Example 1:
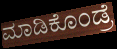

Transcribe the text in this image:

ಮಾಡಿಕೊಂಡ್ರೆ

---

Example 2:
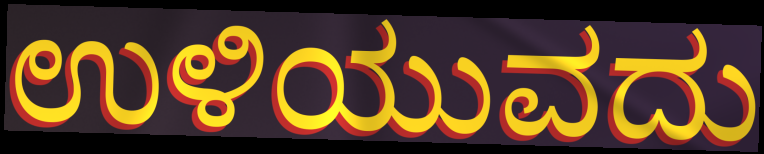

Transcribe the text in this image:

ಉಳಿಯುವದು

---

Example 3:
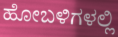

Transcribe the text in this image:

ಹೋಬಳಿಗಳಲ್ಲಿ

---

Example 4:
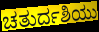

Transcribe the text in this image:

ಚತುರ್ದಶಿಯು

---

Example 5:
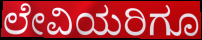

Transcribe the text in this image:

ಲೇವಿಯರಿಗೂ